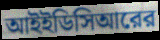
আইইডিসিআরের